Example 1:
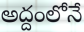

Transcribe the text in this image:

అద్దంలోనే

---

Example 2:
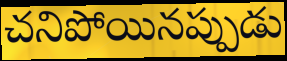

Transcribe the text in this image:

చనిపోయినప్పుడు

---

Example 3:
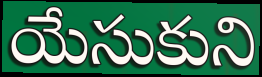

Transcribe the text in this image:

యేసుకుని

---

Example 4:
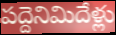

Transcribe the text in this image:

పద్దెనిమిదేళ్లు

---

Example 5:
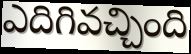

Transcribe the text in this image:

ఎదిగివచ్చింది